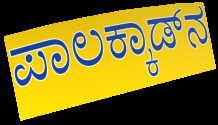
ಪಾಲಕ್ಕಾಡ್‌ನ